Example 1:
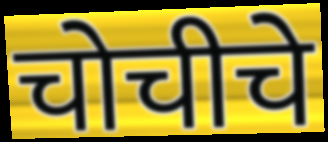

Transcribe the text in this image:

चोचीचे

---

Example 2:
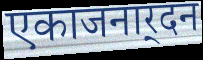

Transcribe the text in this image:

एकाजनार्दन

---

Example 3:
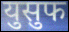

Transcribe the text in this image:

युसुफ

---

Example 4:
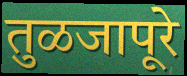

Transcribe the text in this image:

तुळजापूरे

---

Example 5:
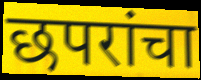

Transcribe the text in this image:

छपरांचा